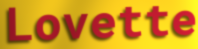
Lovette